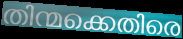
തിന്മക്കെതിരെ